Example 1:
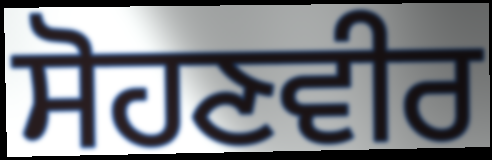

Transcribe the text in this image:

ਸੋਹਣਵੀਰ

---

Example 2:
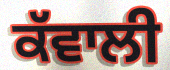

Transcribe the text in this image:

ਕੱਵਾਲੀ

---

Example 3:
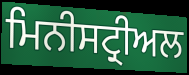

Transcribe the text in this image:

ਮਿਨੀਸਟ੍ਰੀਅਲ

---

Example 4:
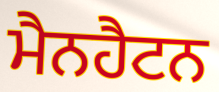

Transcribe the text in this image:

ਮੈਨਹੈਟਨ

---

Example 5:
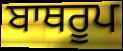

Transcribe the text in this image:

ਬਾਥਰੂਪ